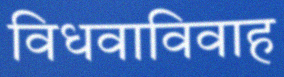
विधवाविवाह